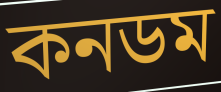
কনডম